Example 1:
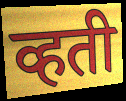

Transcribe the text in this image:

व्हती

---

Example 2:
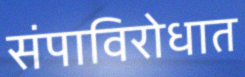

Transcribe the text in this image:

संपाविरोधात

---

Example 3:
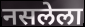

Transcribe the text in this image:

नसलेला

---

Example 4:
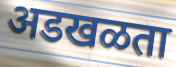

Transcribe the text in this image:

अडखळता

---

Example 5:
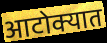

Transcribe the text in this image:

आटोक्यात